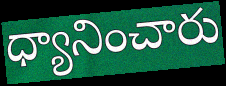
ధ్యానించారు